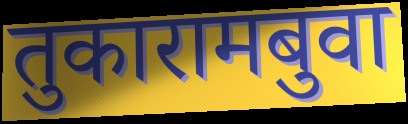
तुकारामबुवा